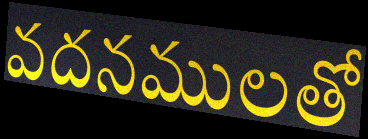
వదనములతో